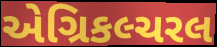
એગ્રિકલ્ચરલ